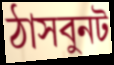
ঠাসবুনট